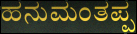
ಹನುಮಂತಪ್ಪ